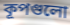
কূপগুলো